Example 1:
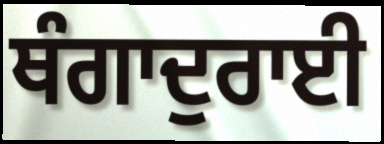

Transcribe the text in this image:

ਥੰਗਾਦੁਰਾਈ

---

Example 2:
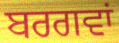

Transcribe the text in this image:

ਬਰਗਵਾਂ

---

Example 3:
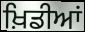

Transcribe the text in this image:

ਖ਼ਿਡੀਆਂ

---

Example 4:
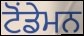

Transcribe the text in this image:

ਟੋਂਡੇਮਨ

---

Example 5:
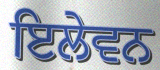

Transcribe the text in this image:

ਇਲੇਵਨ